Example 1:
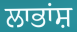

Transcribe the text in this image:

ਲਾਭਾਂਸ਼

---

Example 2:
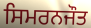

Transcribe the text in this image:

ਸਿਮਰਨਜੌਤ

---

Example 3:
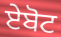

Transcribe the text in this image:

ਏਬੋਟ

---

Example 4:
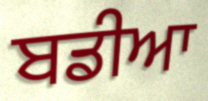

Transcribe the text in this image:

ਬਡੀਆ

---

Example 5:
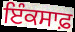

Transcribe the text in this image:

ਇੰਕਸਾਫ਼